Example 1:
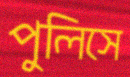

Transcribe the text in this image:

পুলিসে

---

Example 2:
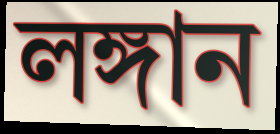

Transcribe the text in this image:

লঙ্গান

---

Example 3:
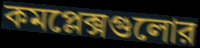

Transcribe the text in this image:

কমপ্লেক্সগুলোর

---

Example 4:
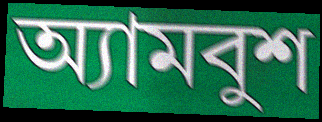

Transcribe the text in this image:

অ্যামবুশ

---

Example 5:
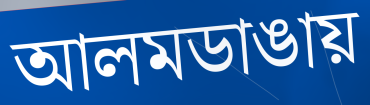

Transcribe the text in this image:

আলমডাঙায়